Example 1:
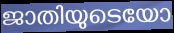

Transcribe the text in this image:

ജാതിയുടെയോ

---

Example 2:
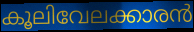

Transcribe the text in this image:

കൂലിവേലക്കാരൻ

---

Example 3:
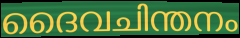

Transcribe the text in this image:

ദൈവചിന്തനം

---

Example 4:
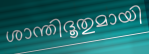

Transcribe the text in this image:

ശാന്തിദൂതുമായി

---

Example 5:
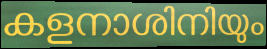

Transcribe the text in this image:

കളനാശിനിയും